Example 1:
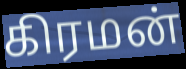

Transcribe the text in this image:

கிரமன்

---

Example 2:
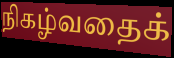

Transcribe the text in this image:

நிகழ்வதைக்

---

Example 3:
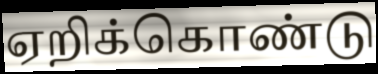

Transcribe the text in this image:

ஏறிக்கொண்டு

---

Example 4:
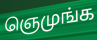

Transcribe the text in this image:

ஞெமுங்க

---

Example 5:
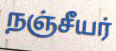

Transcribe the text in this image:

நஞ்சீயர்